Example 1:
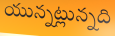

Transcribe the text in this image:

యున్నట్లున్నది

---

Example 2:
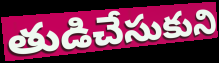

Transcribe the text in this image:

తుడిచేసుకుని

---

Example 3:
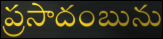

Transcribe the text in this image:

ప్రసాదంబును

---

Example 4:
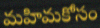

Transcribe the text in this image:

మహిమకోసం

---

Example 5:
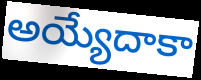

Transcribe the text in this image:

అయ్యేదాకా